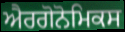
ਐਰਗੋਨੋਮਿਕਸ